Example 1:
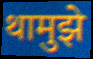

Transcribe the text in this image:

थामुझे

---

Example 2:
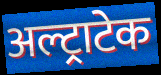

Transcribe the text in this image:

अल्‍ट्राटेक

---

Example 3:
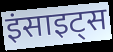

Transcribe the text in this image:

इंसाइट्स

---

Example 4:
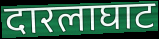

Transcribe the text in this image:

दारलाघाट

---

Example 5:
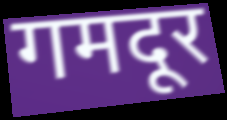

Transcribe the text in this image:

गमदूर